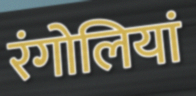
रंगोलियां